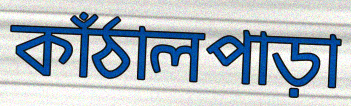
কাঁঠালপাড়া